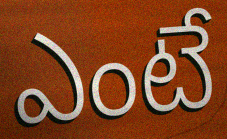
ఎంటే